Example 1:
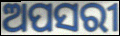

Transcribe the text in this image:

ଅପସରୀ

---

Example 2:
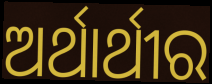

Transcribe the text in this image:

ଅର୍ଥାର୍ଥୀର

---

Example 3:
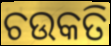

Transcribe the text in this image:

ଚଉକତି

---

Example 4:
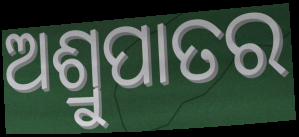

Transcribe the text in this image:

ଅଶ୍ରୁପାତର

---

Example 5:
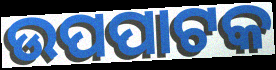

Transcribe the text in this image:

ଉପପାଟକ